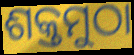
ଶକ୍ତମୁଠା